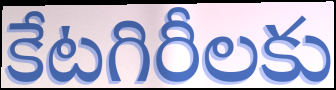
కేటగిరీలకు